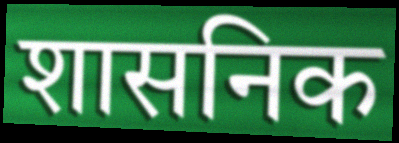
शासनिक